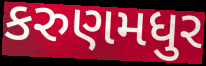
કરુણમધુર